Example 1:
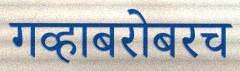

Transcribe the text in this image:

गव्हाबरोबरच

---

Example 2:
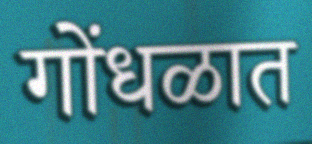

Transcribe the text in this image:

गोंधळात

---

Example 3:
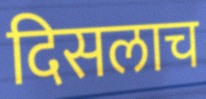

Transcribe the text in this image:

दिसलाच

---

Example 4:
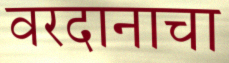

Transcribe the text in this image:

वरदानाचा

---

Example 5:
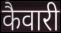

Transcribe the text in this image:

कैवारी